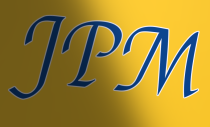
JPM